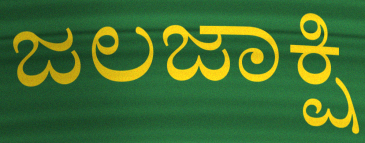
ಜಲಜಾಕ್ಷಿ